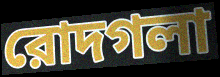
রোদগলা